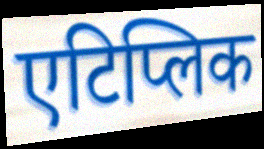
एटिप्लिक